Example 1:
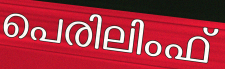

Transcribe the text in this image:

പെരിലിംഫ്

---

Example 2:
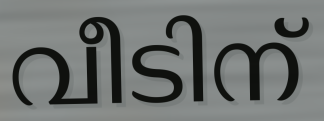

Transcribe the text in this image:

വീടിന്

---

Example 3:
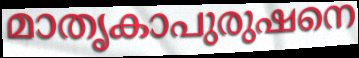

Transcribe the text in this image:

മാതൃകാപുരുഷനെ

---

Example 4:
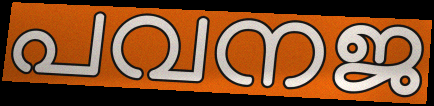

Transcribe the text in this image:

പവനജ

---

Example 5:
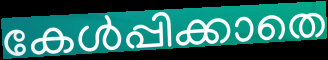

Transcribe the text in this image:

കേൾപ്പിക്കാതെ